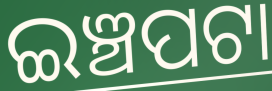
ଇଞ୍ଚପଟା